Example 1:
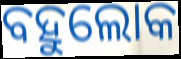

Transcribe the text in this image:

ବହୁଲୋକ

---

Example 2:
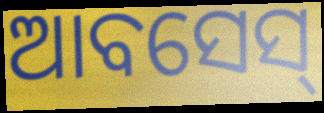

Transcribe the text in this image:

ଆବସେସ୍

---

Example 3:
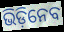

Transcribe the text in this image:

ଭିଡ଼ିନେବ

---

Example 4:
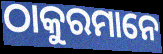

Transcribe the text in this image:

ଠାକୁରମାନେ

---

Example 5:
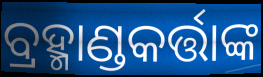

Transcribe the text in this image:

ବ୍ରହ୍ମାଣ୍ଡକର୍ତ୍ତାଙ୍କ